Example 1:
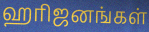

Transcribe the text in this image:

ஹரிஜனங்கள்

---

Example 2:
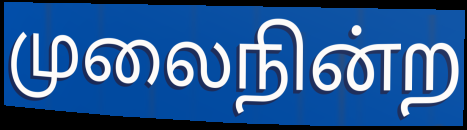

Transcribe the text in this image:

முலைநின்ற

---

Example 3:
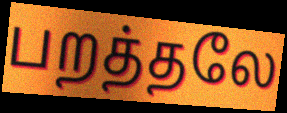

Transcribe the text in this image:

பறத்தலே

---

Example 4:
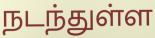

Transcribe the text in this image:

நடந்துள்ள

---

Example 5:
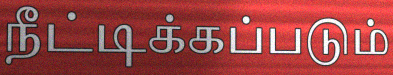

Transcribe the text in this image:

நீட்டிக்கப்படும்